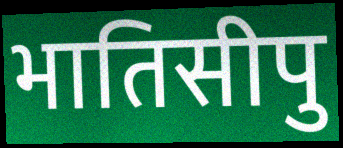
भातिसीपु